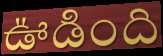
ఊడింది